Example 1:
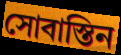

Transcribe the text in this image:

সোবাস্তিন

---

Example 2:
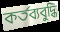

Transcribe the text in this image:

কর্তব্যবুদ্ধি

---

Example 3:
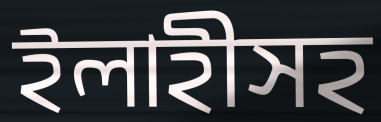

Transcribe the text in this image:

ইলাহীসহ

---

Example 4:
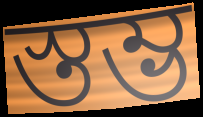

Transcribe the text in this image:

স্তম্ভ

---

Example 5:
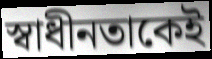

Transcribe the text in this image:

স্বাধীনতাকেই